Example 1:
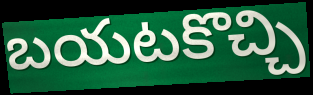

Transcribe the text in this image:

బయటకొచ్చి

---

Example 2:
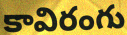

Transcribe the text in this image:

కావిరంగు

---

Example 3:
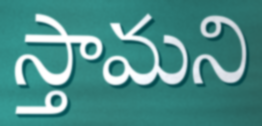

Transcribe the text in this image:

స్తామని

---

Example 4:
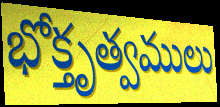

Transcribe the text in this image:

భోక్తృత్వములు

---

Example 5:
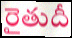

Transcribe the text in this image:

రైతుదీ